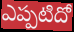
ఎప్పటిదో